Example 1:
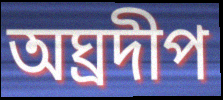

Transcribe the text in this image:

অঘ্ৰদীপ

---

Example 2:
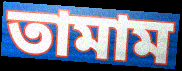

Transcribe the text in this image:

তামাম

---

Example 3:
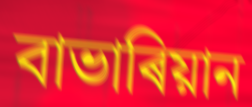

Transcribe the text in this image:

বাভাৰিয়ান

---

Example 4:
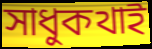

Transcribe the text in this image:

সাধুকথাই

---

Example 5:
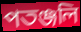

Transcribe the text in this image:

পতঞ্জলি